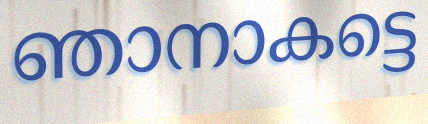
ഞാനാകട്ടെ